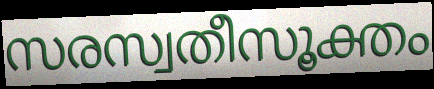
സരസ്വതീസൂക്തം